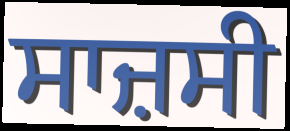
ਸਾਜ਼ਸੀ